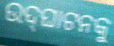
ଉଦ୍‌ଘାଟନକୁ